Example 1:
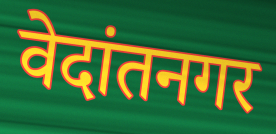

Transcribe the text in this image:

वेदांतनगर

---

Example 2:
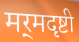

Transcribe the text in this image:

मर्मदृष्टी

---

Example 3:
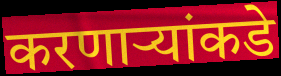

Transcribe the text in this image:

करणाऱ्यांकडे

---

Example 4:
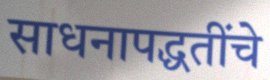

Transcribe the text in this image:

साधनापद्धतींचे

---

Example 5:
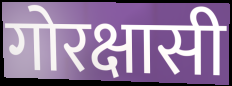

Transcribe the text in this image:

गोरक्षासी